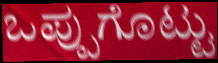
ಒಪ್ಪುಗೊಟ್ಟು